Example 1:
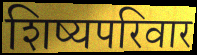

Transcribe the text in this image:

शिष्यपरिवार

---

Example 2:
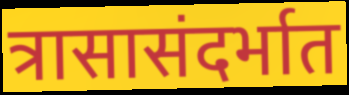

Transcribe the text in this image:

त्रासासंदर्भात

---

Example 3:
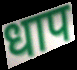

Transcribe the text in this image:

धाप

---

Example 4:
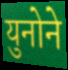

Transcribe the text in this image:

युनोने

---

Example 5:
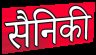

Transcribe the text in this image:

सैनिकी